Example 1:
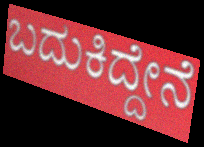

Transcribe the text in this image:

ಬದುಕಿದ್ದೇನೆ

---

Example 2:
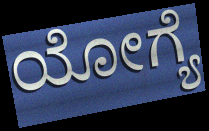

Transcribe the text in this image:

ಯೋಗ್ಯೆ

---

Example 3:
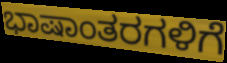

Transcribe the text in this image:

ಭಾಷಾಂತರಗಳಿಗೆ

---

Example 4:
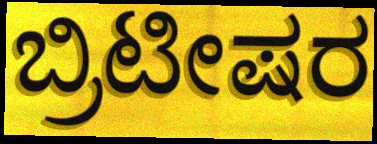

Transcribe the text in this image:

ಬ್ರಿಟೀಷರ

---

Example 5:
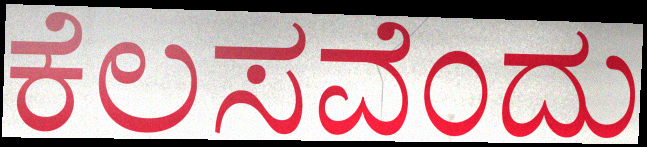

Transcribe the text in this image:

ಕೆಲಸವೆಂದು